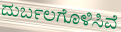
ದುರ್ಬಲಗೊಳಿಸಿವೆ